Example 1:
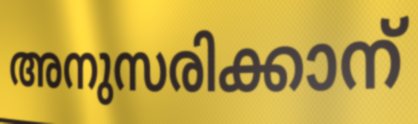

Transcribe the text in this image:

അനുസരിക്കാന്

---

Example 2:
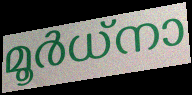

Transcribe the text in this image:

മൂർധ്നാ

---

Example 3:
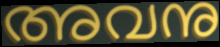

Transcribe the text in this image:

അവനു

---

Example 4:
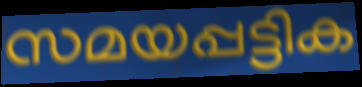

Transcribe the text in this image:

സമയപ്പട്ടിക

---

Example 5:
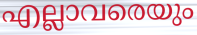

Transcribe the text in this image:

എല്ലാവരെയും